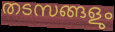
തടസങ്ങളും